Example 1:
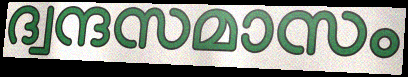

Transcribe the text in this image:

ദ്വന്ദസമാസം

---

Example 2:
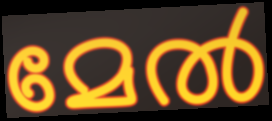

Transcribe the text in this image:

മേൽ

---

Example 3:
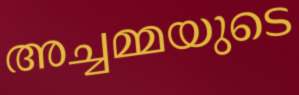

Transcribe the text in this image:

അച്ചമ്മയുടെ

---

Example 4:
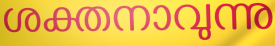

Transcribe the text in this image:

ശക്തനാവുന്നു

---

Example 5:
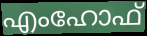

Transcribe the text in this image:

എംഹോഫ്